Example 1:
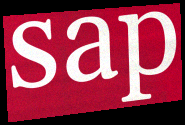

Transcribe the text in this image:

sap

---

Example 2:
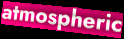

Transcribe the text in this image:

atmospheric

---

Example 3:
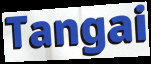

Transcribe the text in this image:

Tangai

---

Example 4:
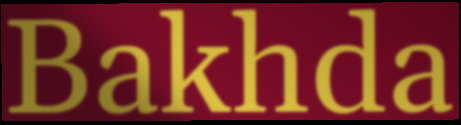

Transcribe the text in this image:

Bakhda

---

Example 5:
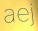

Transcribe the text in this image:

aej